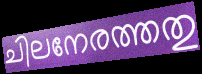
ചിലനേരത്തതു